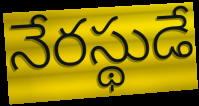
నేరస్థుడే